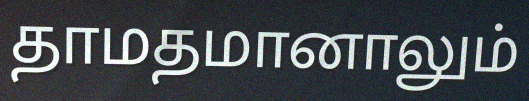
தாமதமானாலும்